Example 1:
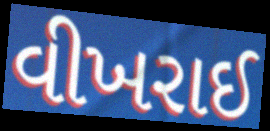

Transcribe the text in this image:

વીખરાઈ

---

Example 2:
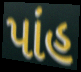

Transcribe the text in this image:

પાંહ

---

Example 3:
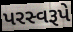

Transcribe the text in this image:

પરસ્વરૂપે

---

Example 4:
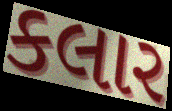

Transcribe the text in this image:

કલાર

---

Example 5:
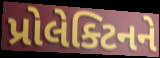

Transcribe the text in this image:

પ્રોલેક્ટિનને